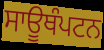
ਸਾਊਥੰਪਟਨ